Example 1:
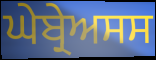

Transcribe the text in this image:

ਘੇਬ੍ਰੇਅਸਸ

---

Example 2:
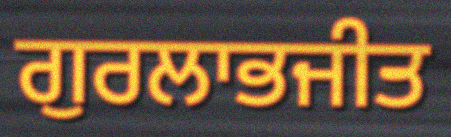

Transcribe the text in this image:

ਗੁਰਲਾਭਜੀਤ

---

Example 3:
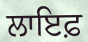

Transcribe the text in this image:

ਲਾਇਫ਼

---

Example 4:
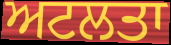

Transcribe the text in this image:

ਅਟਲਤਾ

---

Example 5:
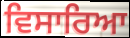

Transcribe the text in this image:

ਵਿਸਾਰਿਆ